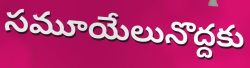
సమూయేలునొద్దకు